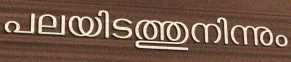
പലയിടത്തുനിന്നും